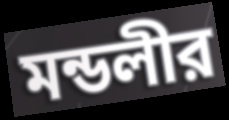
মন্ডলীর